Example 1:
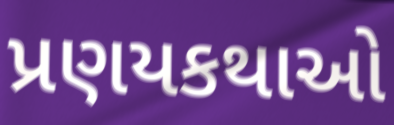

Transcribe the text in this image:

પ્રણયકથાઓ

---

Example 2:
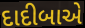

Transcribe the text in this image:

દાદીબાએ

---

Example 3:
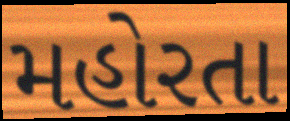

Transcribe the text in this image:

મહોરતા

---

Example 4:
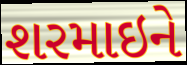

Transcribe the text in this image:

શરમાઇને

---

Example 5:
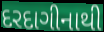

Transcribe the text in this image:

દરદાગીનાથી